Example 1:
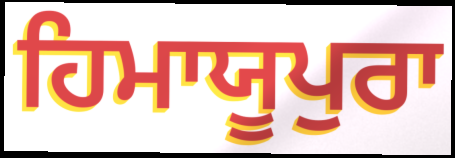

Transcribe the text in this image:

ਹਿਮਾਯੂਪੁਰਾ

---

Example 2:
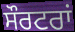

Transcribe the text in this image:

ਸੌਰਟਰਾਂ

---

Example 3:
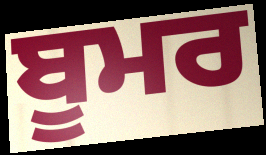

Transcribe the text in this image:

ਬੂਮਰ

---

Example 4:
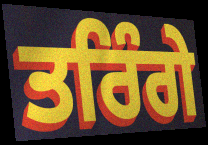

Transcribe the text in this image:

ਤਰਿੰਗੇ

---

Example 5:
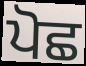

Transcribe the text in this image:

ਪੋਛ